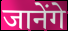
जानेंगे